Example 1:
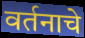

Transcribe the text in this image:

वर्तनाचे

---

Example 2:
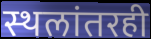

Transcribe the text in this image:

स्थलांतरही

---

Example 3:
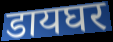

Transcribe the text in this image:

डायघर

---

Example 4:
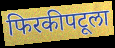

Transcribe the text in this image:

फिरकीपटूला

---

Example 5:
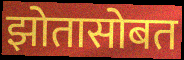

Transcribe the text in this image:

झोतासोबत